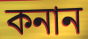
কনান